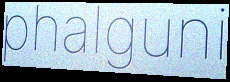
phalguni